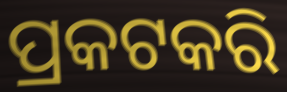
ପ୍ରକଟକରି